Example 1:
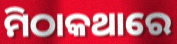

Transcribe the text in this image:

ମିଠାକଥାରେ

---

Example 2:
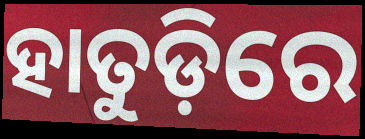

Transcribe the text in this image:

ହାତୁଡ଼ିରେ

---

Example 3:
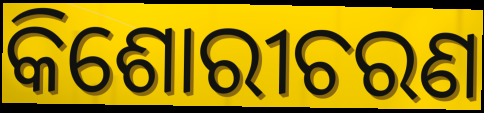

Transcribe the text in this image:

କିଶୋରୀଚରଣ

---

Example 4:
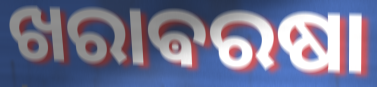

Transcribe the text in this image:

ଖରାଵରଷା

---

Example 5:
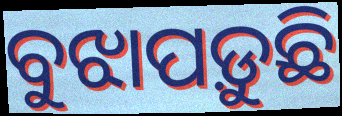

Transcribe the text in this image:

ବୁଝାପଡ଼ୁଛି